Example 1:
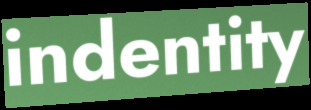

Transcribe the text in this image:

indentity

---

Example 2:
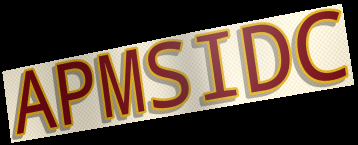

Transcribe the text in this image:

APMSIDC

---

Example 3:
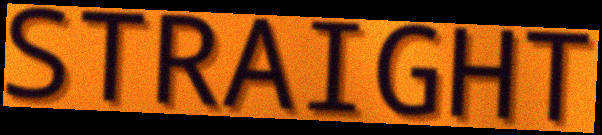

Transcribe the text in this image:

STRAIGHT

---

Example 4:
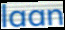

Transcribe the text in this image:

laan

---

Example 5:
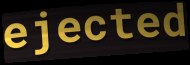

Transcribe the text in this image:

ejected